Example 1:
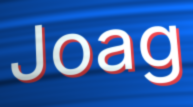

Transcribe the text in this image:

Joag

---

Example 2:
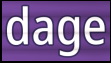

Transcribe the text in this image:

dage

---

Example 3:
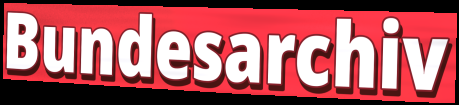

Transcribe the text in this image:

Bundesarchiv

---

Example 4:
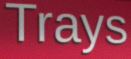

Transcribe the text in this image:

Trays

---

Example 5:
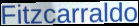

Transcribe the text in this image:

Fitzcarraldo